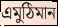
এমুঠিমান